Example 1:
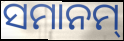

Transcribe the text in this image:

ସମାନମ୍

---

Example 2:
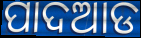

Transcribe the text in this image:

ପାଦଆଡ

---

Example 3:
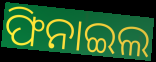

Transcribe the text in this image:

ଫିନାଇଲ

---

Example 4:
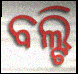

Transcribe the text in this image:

ବଲ୍ଟି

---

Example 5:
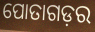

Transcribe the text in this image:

ପୋତାଗଡ଼ର